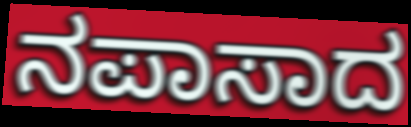
ನಪಾಸಾದ